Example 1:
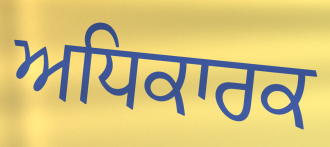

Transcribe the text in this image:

ਅਧਿਕਾਰਕ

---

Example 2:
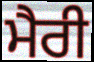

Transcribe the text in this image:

ਮੈਰੀ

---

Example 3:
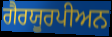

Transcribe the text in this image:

ਗੈਰਯੂਰਪੀਅਨ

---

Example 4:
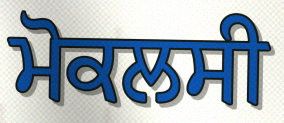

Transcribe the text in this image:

ਮੋਕਲਸੀ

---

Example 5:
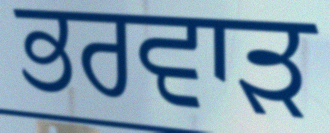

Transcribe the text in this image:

ਭਰਵਾੜ